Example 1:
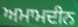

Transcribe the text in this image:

ਅਮਾਮਦੀਨ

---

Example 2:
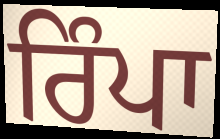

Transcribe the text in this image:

ਰਿੰਪਾ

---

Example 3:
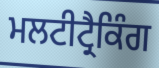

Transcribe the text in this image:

ਮਲਟੀਟ੍ਰੈਕਿੰਗ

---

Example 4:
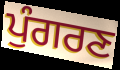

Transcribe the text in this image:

ਪੁੰਗਰਣ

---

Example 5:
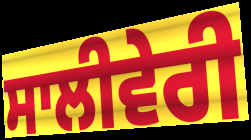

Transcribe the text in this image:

ਸਾਲੀਵੇਰੀ